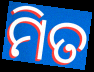
ମିତ